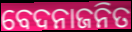
ବେଦନାଜନିତ